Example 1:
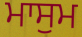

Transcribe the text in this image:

ਮਾਸੁਮ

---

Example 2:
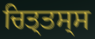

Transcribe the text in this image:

ਚਿਤ੍ਤਸ੍ਸ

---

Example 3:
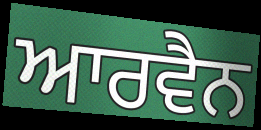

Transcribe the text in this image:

ਆਰਵੈਨ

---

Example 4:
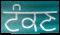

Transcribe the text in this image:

ਟੰਕਣ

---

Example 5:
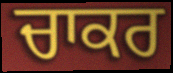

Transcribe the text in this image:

ਚਾਕਰ